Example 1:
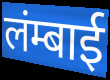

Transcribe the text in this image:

लंम्बाई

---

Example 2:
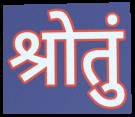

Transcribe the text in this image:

श्रोतुं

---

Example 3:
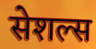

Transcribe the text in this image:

सेशल्स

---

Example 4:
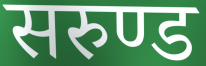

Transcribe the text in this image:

सरुण्ड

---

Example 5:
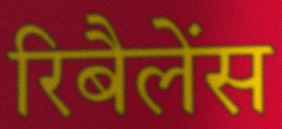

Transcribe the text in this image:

रिबैलेंस